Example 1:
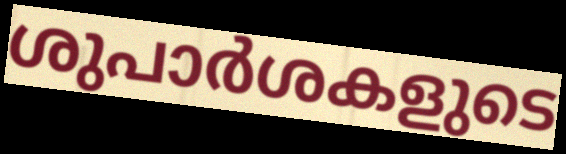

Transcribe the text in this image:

ശുപാർശകളുടെ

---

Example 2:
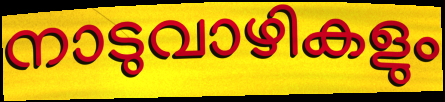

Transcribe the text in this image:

നാടുവാഴികളും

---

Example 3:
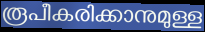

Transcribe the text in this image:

രൂപീകരിക്കാനുമുള്ള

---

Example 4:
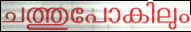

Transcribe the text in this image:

ചത്തുപോകിലും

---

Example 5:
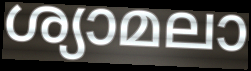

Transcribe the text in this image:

ശ്യാമലാ